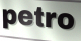
petro